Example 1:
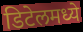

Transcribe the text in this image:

डिटेलमध्ये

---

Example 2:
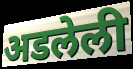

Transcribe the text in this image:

अडलेली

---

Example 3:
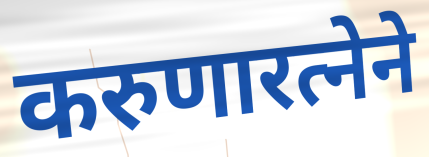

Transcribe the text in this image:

करुणारत्नेने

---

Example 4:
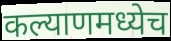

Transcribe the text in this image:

कल्याणमध्येच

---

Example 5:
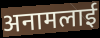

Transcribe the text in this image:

अनामलाई